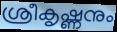
ശ്രീകൃഷ്ണനും